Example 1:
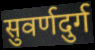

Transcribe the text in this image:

सुवर्णदुर्ग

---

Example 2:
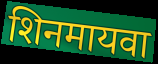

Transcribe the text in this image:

शिनमायवा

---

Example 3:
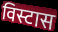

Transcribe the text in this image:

विस्टास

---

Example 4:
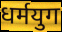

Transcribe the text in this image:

धर्मयुग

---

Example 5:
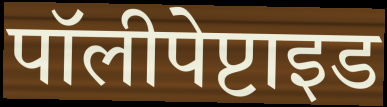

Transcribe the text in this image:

पॉलीपेप्टाइड